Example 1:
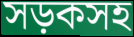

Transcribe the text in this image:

সড়কসহ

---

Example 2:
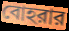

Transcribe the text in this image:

বোহরার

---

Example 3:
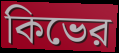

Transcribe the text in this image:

কিভের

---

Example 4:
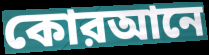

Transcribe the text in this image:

কোরআনে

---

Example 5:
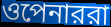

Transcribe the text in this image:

ওপেনাররা